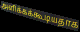
அளிக்கக்கூடியதாக